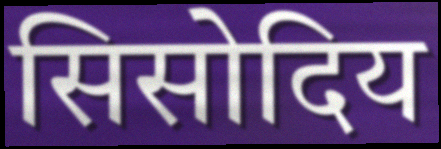
सिसोदिय